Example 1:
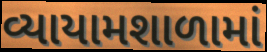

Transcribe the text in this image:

વ્યાયામશાળામાં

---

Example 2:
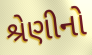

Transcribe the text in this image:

શ્રેણીનો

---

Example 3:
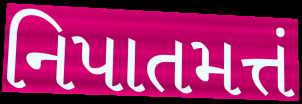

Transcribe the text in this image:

નિપાતમત્તં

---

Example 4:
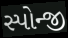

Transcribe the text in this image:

સ્પોન્જી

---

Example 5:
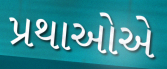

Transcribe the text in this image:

પ્રથાઓએ